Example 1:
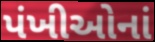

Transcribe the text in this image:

પંખીઓનાં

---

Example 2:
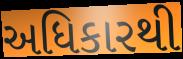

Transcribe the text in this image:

અધિકારથી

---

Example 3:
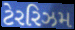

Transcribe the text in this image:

ટેરરિઝમ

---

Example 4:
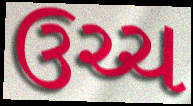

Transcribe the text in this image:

ઉચ્ચ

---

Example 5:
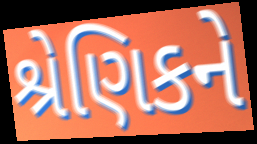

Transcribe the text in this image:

શ્રેણિકને